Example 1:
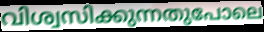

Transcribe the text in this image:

വിശ്വസിക്കുന്നതുപോലെ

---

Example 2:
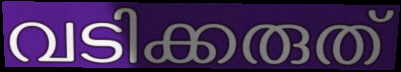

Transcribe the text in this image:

വടിക്കരുത്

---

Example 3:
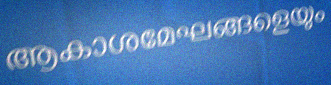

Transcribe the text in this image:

ആകാശമേഘങ്ങളെയും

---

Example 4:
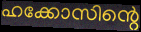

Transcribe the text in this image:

ഹക്കോസിന്റെ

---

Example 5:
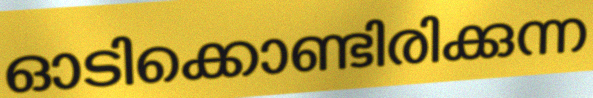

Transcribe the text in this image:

ഓടിക്കൊണ്ടിരിക്കുന്ന